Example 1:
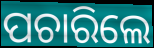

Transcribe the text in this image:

ପଚାରିଲେ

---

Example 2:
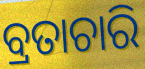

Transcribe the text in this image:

ବ୍ରତାଚାରି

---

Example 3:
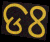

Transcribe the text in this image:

ଡଃ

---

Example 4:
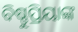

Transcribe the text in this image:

ବିଷ୍ଣୁପ୍ରିୟାଙ୍କ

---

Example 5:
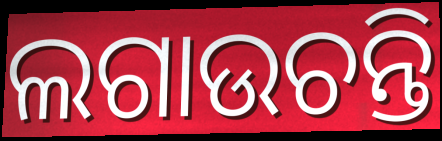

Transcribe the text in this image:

ଲଗାଉଚନ୍ତି